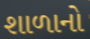
શાળાનો